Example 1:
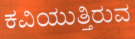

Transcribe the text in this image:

ಕವಿಯುತ್ತಿರುವ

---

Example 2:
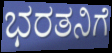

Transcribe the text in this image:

ಭರತನಿಗೆ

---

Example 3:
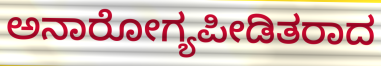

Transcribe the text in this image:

ಅನಾರೋಗ್ಯಪೀಡಿತರಾದ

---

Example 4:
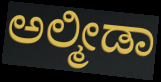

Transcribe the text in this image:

ಅಲ್ಮೀಡಾ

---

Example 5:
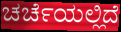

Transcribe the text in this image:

ಚರ್ಚೆಯಲ್ಲಿದೆ